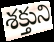
శక్తుని